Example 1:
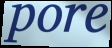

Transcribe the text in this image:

pore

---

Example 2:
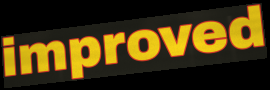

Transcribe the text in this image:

improved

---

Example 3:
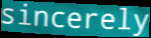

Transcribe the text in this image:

sincerely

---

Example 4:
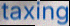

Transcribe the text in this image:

taxing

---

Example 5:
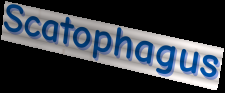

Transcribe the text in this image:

Scatophagus